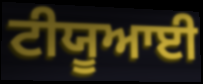
ਟੀਯੂਆਈ